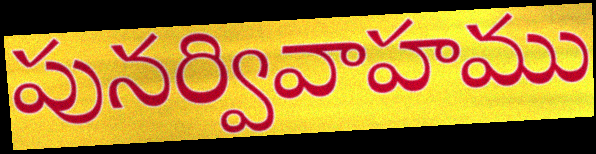
పునర్వివాహము